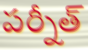
పర్నీత్